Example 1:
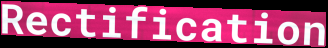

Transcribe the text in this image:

Rectification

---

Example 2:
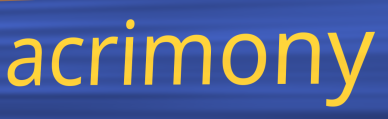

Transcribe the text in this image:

acrimony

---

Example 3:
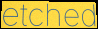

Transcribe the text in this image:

etched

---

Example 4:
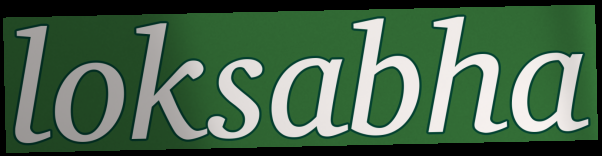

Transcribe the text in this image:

loksabha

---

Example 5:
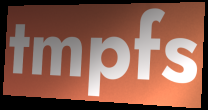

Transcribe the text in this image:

tmpfs